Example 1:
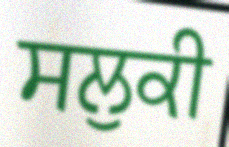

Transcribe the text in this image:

ਸਲੁਕੀ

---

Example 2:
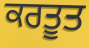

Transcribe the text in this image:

ਕਰਤੂਤ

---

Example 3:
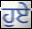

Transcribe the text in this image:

ਹੁਏ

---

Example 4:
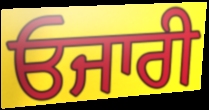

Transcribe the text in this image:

ਓਜਾਰੀ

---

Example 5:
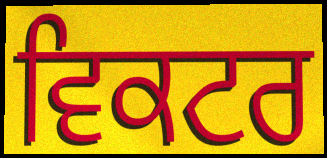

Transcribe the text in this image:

ਵਿਕਟਰ